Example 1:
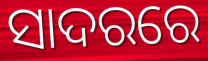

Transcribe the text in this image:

ସାଦରରେ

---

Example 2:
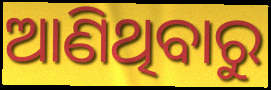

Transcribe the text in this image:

ଆଣିଥିବାରୁ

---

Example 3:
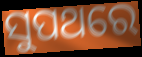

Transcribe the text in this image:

ସୁପଥରେ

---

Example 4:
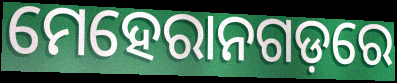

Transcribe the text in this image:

ମେହେରାନଗଡ଼ରେ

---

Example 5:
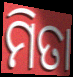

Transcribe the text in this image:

ମିତା